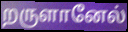
றருளானேல்